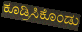
ಕೂಡ್ರಿಸಿಕೊಂಡು